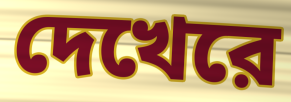
দেখেরে